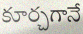
కూర్చగానే